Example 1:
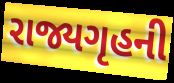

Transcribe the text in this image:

રાજ્યગૃહની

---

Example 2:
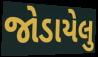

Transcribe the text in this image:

જોડાયેલુ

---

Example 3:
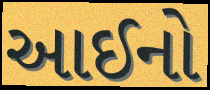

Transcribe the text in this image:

આઈનો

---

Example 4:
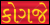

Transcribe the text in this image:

કોગજે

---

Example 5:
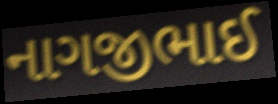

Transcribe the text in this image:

નાગજીભાઈ